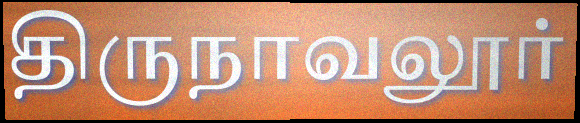
திருநாவலூர்